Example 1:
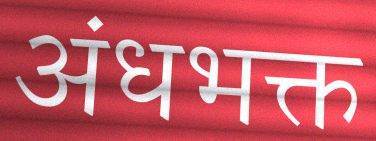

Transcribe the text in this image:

अंधभक्त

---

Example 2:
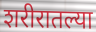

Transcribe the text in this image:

शरीरातल्या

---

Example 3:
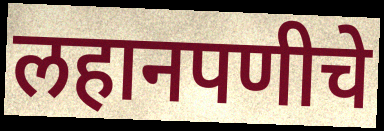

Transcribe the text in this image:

लहानपणीचे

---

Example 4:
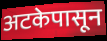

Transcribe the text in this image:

अटकेपासून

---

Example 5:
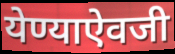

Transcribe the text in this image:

येण्याऐवजी